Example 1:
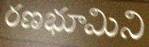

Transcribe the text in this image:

రణభూమిని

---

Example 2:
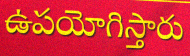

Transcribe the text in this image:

ఉపయోగిస్తారు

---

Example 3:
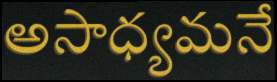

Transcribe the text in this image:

అసాధ్యమనే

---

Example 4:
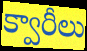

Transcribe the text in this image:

క్వారీలు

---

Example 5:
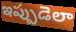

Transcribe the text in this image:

ఇప్పుడెలా